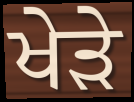
ਖੇੜੇ